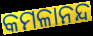
କମଳାନନ୍ଦ